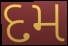
દમ